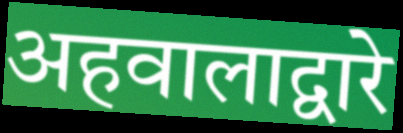
अहवालाद्वारे